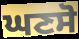
ਘਣਸੋ